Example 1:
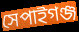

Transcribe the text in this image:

সেপাইগঞ্জ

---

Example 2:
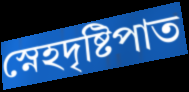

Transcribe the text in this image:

স্নেহদৃষ্টিপাত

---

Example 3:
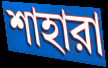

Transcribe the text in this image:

শাহারা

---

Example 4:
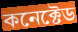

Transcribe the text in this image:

কনেক্টেড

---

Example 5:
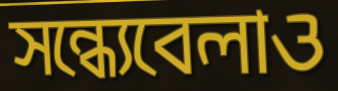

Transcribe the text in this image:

সন্ধ্যেবেলাও